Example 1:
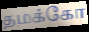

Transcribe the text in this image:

தமக்கோ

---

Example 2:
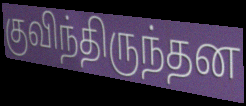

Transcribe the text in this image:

குவிந்திருந்தன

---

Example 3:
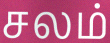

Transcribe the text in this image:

சலம்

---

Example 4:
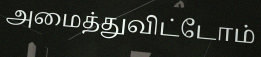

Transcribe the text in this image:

அமைத்துவிட்டோம்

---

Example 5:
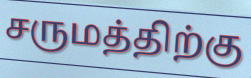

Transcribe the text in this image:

சருமத்திற்கு